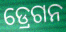
ଡ୍ରେଗନ